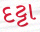
દટ્ટા